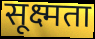
सूक्ष्मता